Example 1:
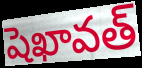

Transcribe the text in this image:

షెఖావత్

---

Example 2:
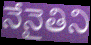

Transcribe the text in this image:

నేనైతిని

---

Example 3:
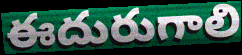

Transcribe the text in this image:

ఈదురుగాలి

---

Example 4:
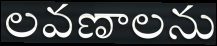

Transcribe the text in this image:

లవణాలను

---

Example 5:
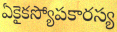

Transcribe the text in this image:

ఏకైకస్యోపకారస్య